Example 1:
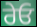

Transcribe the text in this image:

ਰੇਓ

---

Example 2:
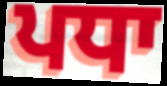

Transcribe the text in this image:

ਪਧਾ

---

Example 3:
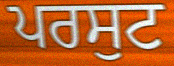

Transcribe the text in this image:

ਪਰਸੁਟ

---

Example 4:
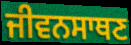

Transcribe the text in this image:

ਜੀਵਨਸਾਥਣ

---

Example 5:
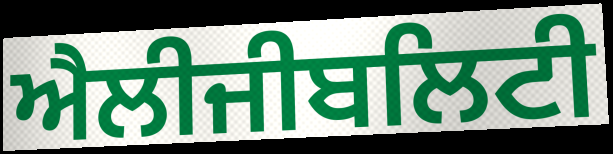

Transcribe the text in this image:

ਐਲੀਜੀਬਲਿਟੀ